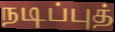
நடிப்புத்